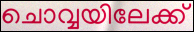
ചൊവ്വയിലേക്ക്